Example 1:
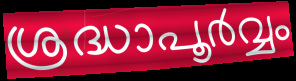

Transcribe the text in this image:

ശ്രദ്ധാപൂർവ്വം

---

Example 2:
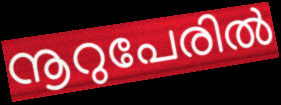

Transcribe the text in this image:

നൂറുപേരിൽ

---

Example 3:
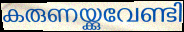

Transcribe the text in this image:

കരുണയ്ക്കുവേണ്ടി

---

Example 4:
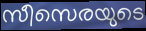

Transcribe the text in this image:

സീസെരയുടെ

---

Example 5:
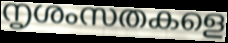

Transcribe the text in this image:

നൃശംസതകളെ